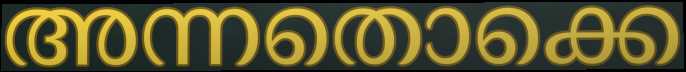
അന്നതൊക്കെ